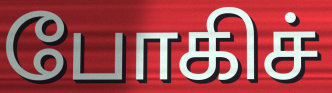
போகிச்